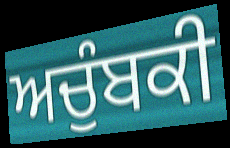
ਅਚੁੰਬਕੀ